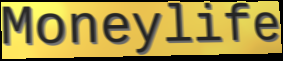
Moneylife